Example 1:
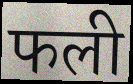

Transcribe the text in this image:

फली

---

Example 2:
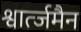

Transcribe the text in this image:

श्वार्त्जमैन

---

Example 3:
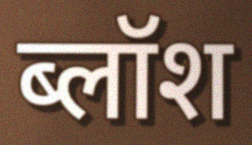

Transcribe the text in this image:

ब्लॉश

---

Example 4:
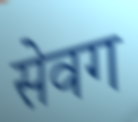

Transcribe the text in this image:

सेवग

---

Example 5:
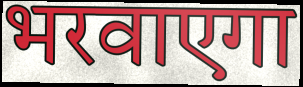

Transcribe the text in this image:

भरवाएगा